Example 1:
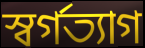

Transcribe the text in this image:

স্বর্গত্যাগ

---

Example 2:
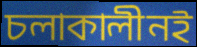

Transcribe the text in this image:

চলাকালীনই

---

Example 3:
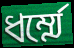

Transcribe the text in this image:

ধর্ম্মে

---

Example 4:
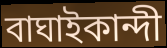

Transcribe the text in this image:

বাঘাইকান্দী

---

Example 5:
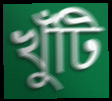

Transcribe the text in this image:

খুঁটি